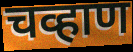
चव्हाण